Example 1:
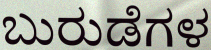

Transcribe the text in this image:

ಬುರುಡೆಗಳ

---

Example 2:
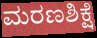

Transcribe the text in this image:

ಮರಣಶಿಕ್ಷೆ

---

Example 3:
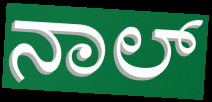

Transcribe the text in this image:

ನಾಲ್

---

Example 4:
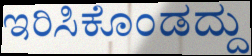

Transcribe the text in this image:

ಇರಿಸಿಕೊಂಡದ್ದು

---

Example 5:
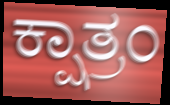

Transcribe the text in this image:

ಕ್ಷಾತ್ರಂ